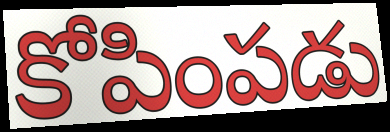
కోపింపడు